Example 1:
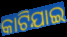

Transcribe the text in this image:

କାଟିଯାଇ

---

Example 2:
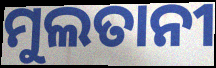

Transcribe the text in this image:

ମୁଲତାନୀ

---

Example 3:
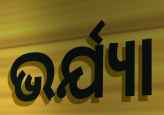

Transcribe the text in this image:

ଭର୍ଯ୍ୟା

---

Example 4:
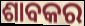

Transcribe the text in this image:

ଶାବକର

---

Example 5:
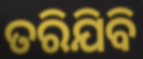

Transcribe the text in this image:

ତରିଯିବି